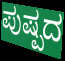
ಪುಷ್ಪದ